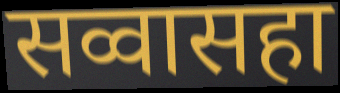
सव्वासहा